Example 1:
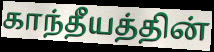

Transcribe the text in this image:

காந்தீயத்தின்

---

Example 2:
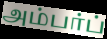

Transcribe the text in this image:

அம்பர்ப்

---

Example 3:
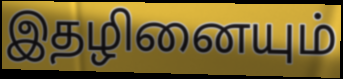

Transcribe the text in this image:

இதழினையும்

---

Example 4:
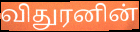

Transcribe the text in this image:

விதுரனின்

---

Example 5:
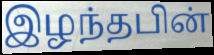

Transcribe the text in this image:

இழந்தபின்